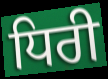
ਧਿਰੀ